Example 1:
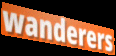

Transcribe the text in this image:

wanderers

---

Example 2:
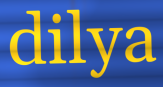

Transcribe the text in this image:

dilya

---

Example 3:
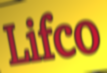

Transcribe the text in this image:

Lifco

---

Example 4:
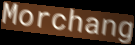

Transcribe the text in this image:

Morchang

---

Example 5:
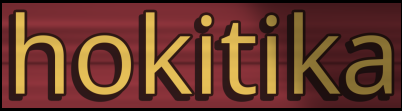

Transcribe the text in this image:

hokitika